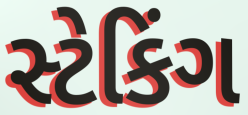
સ્ટેકિંગ